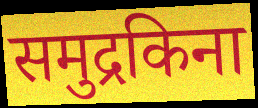
समुद्रकिना